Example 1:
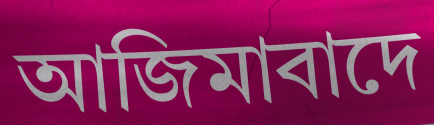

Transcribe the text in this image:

আজিমাবাদে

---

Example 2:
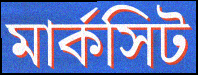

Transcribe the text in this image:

মার্কসিট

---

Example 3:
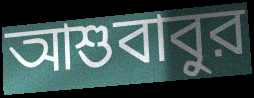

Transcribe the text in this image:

আশুবাবুর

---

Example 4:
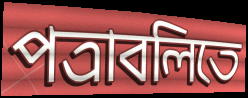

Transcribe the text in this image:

পত্রাবলিতে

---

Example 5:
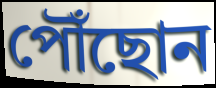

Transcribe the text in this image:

পৌঁছোন